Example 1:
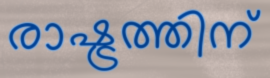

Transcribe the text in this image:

രാഷ്ട്രത്തിന്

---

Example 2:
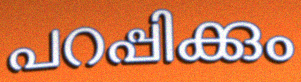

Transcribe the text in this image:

പറപ്പിക്കും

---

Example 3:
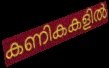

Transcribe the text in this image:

കണികകളിൽ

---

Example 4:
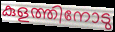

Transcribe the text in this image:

കുളത്തിനോടു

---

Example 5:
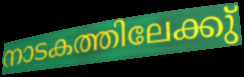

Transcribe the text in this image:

നാടകത്തിലേക്കു്